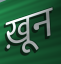
ख़ून